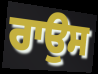
ਰਾਉਸ